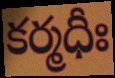
కర్మధీః